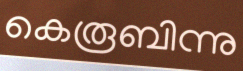
കെരൂബിന്നു